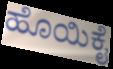
ಹೊಯಿಕೈ